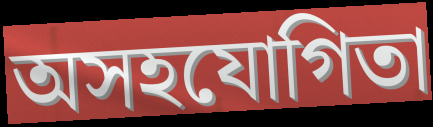
অসহযোগিতা